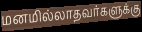
மனமில்லாதவர்களுக்கு